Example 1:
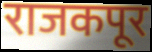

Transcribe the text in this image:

राजकपूर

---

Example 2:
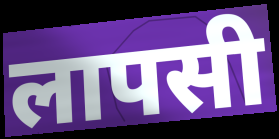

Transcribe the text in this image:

लापसी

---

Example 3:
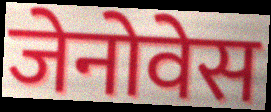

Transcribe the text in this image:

जेनोवेस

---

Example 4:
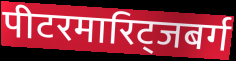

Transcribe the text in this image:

पीटरमारिट्जबर्ग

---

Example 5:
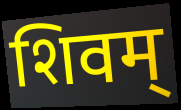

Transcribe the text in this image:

शिवम्